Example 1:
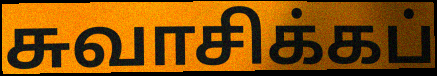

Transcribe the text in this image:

சுவாசிக்கப்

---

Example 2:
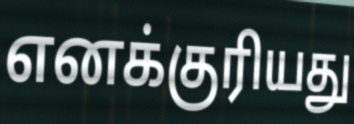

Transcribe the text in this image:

எனக்குரியது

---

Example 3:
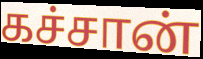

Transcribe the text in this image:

கச்சான்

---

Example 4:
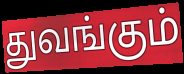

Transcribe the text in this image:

துவங்கும்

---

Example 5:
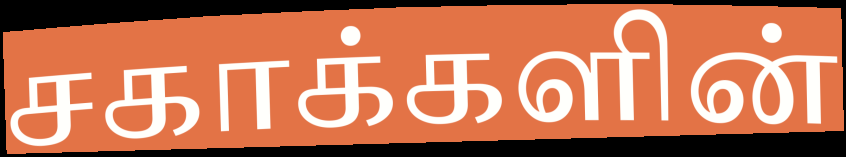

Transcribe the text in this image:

சகாக்களின்